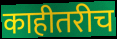
काहीतरीच